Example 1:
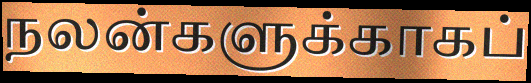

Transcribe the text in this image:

நலன்களுக்காகப்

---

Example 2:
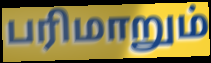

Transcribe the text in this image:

பரிமாறும்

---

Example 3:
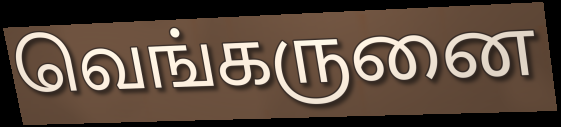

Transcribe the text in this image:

வெங்கருனை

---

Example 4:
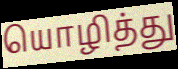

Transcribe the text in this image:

யொழித்து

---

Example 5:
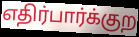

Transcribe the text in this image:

எதிர்பார்க்குற